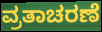
ವ್ರತಾಚರಣೆ